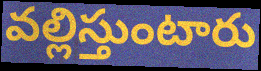
వల్లిస్తుంటారు